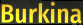
Burkina